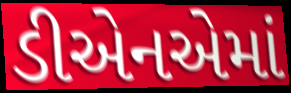
ડીએનએમાં